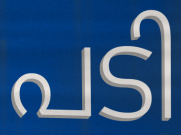
പടി